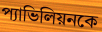
প্যাভিলিয়নকে